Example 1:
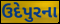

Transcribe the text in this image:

ઉદેપુરના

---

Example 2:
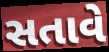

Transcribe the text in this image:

સતાવે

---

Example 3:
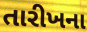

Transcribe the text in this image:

તારીખના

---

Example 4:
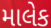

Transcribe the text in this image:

માલેક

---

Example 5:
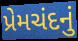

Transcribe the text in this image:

પ્રેમચંદનું